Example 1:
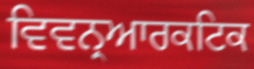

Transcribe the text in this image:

ਵਿਵਨ੍ਰਆਰਕਟਿਕ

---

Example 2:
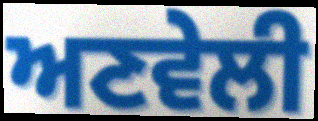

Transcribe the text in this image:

ਅਣਵੇਲੀ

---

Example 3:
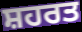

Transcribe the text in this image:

ਸ਼ਹਰਤ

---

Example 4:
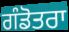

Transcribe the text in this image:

ਗੰਡੋਤਰਾ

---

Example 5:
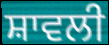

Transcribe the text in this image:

ਸ਼ਾਵਲੀ